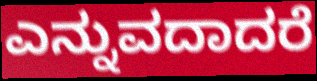
ಎನ್ನುವದಾದರೆ